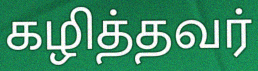
கழித்தவர்